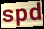
spd